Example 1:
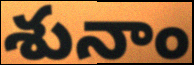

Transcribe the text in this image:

శునాం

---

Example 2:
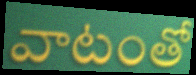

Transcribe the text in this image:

వాటంతో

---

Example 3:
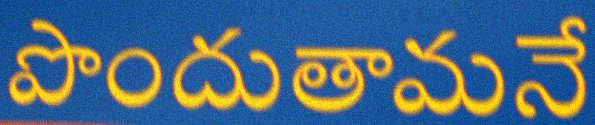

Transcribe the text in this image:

పొందుతామనే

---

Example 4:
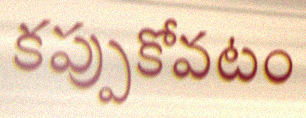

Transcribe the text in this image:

కప్పుకోవటం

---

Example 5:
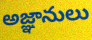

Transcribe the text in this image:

అజ్ఞానులు